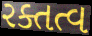
રક્તત્વ